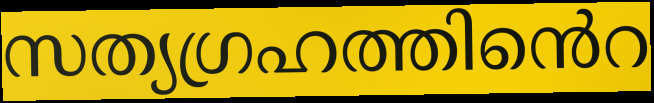
സത്യഗ്രഹത്തിൻെറ